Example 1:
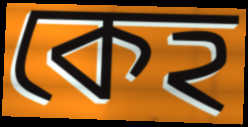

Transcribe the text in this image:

কেহ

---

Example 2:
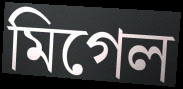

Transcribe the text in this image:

মিগেল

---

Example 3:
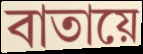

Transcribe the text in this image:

বাতায়ে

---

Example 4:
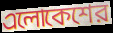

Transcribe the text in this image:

এলোকেশের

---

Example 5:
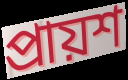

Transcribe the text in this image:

প্রায়শ